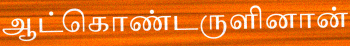
ஆட்கொண்டருளினான்